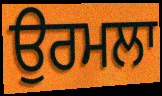
ਉਰਮਲਾ